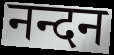
नन्दन